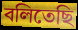
বলিতেছি